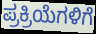
ಪ್ರಕ್ರಿಯೆಗಳಿಗೆ